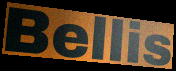
Bellis